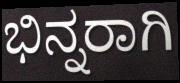
ಭಿನ್ನರಾಗಿ